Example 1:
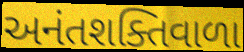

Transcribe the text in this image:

અનંતશક્તિવાળા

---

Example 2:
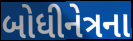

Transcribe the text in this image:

બોધીનેત્રના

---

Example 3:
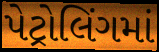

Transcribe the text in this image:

પેટ્રોલિંગમાં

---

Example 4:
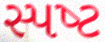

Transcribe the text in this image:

સ્પષ્‍ટ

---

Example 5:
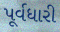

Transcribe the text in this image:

પૂર્વધારી